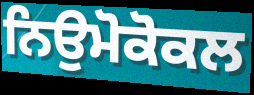
ਨਿਉਮੋਕੋਕਲ